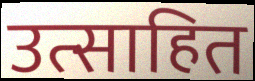
उत्साहित